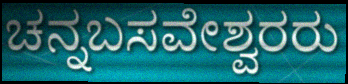
ಚನ್ನಬಸವೇಶ್ವರರು